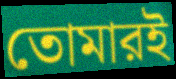
তোমারই